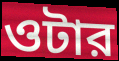
ওটার